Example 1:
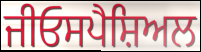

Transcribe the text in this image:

ਜੀਓਸਪੈਸ਼ਿਅਲ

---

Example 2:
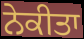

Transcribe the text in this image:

ਨੇਕੀਤਾ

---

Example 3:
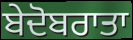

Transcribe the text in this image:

ਬੇਦੋਬਰਾਤਾ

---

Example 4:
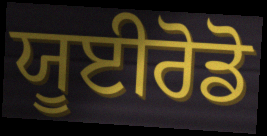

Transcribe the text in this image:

ਯੂਈਰੋਡੋ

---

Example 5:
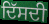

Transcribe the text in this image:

ਦਿੱਸਦੀ